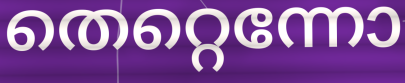
തെറ്റെന്നോ